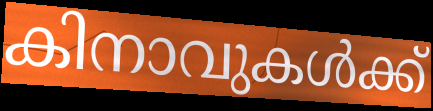
കിനാവുകൾക്ക്